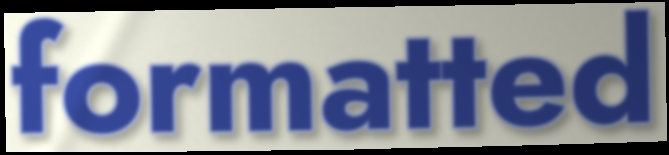
formatted